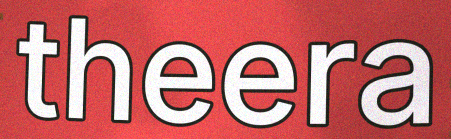
theera